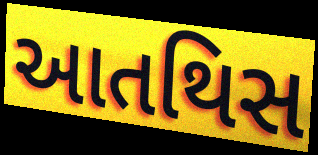
આતથિસ